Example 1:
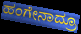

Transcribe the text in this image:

ಹಂಗೇನಾದ್ರೂ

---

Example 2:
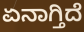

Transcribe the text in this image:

ಏನಾಗ್ತಿದೆ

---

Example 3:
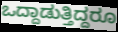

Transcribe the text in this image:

ಒದ್ದಾಡುತ್ತಿದ್ದರೂ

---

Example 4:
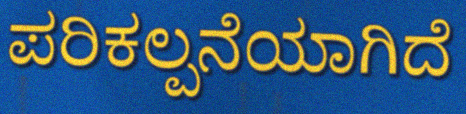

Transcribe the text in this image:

ಪರಿಕಲ್ಪನೆಯಾಗಿದೆ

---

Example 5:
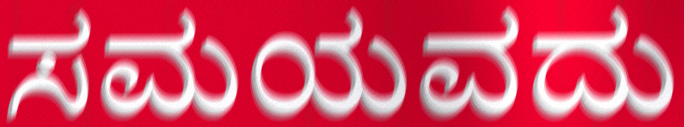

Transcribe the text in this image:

ಸಮಯವದು